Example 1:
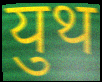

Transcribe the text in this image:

युथ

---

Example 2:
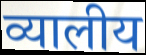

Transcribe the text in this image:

व्यालीय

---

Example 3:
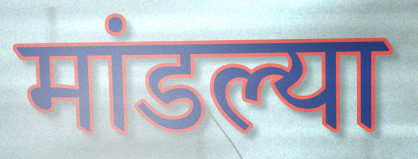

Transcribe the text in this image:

मांडल्या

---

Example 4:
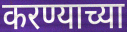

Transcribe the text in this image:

करण्याच्या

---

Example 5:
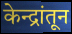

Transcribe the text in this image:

केन्द्रांतून